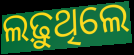
ଲଢ଼ୁଥିଲେ